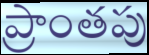
ప్రాంతపు